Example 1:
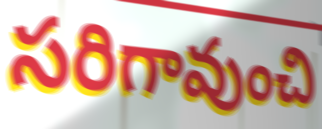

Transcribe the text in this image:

సరిగావుంచి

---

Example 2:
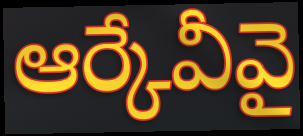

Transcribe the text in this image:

ఆర్కేవీవై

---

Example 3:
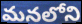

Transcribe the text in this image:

మనలోని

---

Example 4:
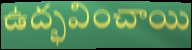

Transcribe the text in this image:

ఉద్భవించాయి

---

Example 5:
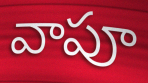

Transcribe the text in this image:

వాపూ